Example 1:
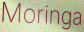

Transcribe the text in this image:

Moringa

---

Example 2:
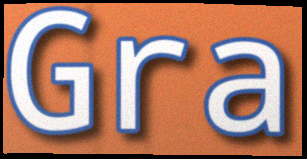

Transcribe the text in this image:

Gra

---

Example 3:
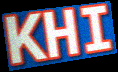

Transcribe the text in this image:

KHI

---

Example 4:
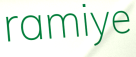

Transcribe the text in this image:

ramiye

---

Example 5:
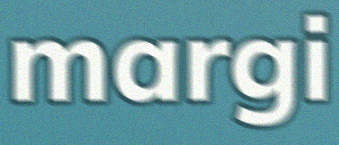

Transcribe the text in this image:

margi